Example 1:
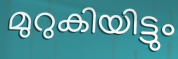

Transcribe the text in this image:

മുറുകിയിട്ടും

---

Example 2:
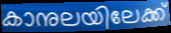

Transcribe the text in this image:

കാനുലയിലേക്ക്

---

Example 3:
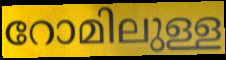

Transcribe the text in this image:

റോമിലുള്ള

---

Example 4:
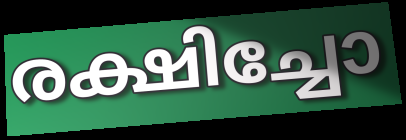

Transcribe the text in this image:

രക്ഷിച്ചോ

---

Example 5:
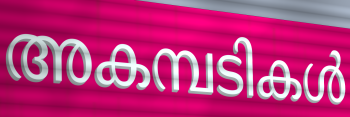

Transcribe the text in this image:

അകമ്പടികൾ